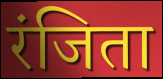
रंजिता